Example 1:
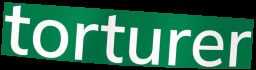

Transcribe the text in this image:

torturer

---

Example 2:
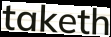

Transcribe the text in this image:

taketh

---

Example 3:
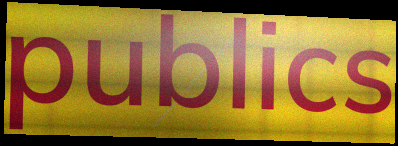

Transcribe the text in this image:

publics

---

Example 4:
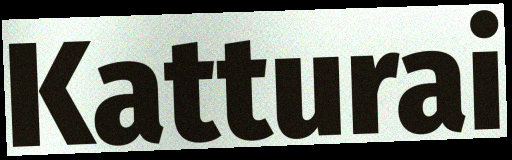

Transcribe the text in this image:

Katturai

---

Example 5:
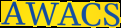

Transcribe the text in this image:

AWACS